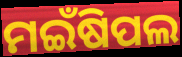
ମଇଁଷିପଲ